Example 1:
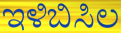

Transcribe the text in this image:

ಇಳಿಬಿಸಿಲ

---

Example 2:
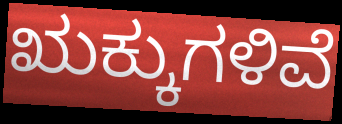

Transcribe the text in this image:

ಋಕ್ಕುಗಳಿವೆ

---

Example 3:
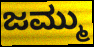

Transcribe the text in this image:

ಜಮ್ಮು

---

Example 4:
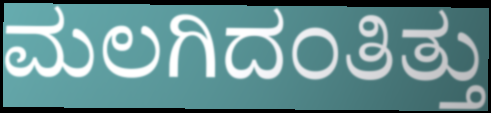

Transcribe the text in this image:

ಮಲಗಿದಂತಿತ್ತು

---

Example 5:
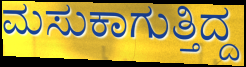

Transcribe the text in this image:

ಮಸುಕಾಗುತ್ತಿದ್ದ